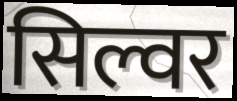
सिल्‍वर